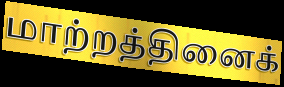
மாற்றத்தினைக்